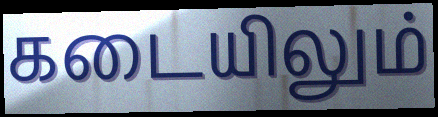
கடையிலும்